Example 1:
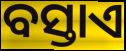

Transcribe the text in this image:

ବସ୍ତାଏ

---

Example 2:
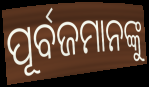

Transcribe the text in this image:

ପୂର୍ବଜମାନଙ୍କୁ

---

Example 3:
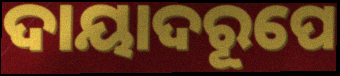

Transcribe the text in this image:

ଦାୟାଦରୂପେ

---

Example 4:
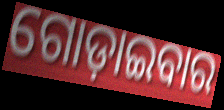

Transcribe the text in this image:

ଗୋଡ଼ାଇବାର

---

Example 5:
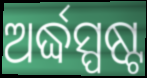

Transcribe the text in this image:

ଅର୍ଦ୍ଧସ୍ପଷ୍ଟ